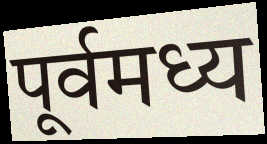
पूर्वमध्य